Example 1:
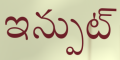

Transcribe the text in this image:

ఇన్పుట్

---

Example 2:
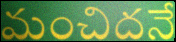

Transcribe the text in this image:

మంచిదనే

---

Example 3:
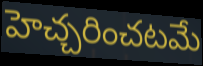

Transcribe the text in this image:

హెచ్చరించటమే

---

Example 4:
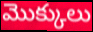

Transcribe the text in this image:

మొక్కులు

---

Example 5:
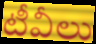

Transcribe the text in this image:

టీవీలు